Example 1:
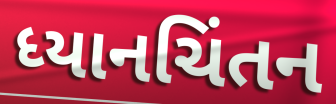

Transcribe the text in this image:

ધ્યાનચિંતન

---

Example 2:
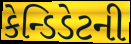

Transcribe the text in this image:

કેન્ડિડેટની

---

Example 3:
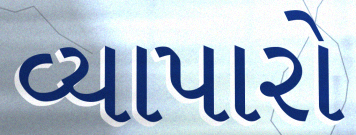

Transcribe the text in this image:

વ્યાપારો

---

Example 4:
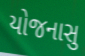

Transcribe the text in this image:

યોજનાસુ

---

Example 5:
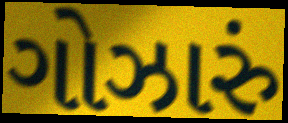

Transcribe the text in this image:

ગોઝારું